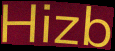
Hizb